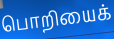
பொறியைக்